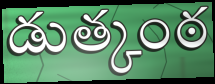
డుత్కంఠ